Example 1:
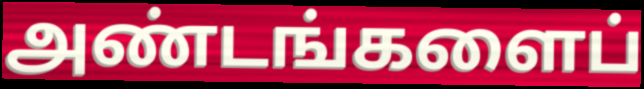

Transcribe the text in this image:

அண்டங்களைப்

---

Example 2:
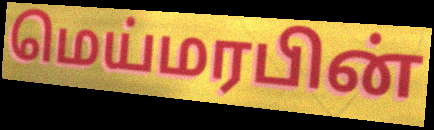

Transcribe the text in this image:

மெய்மரபின்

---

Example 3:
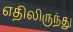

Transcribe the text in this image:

எதிலிருந்து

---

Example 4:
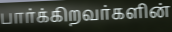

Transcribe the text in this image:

பார்க்கிறவர்களின்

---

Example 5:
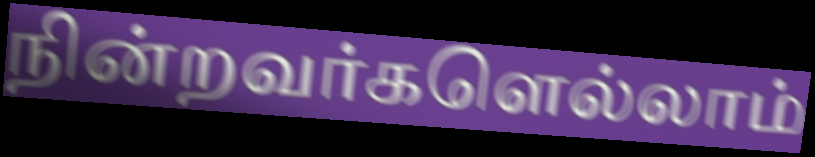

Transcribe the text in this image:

நின்றவர்களெல்லாம்